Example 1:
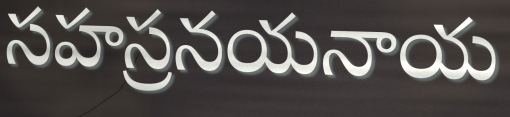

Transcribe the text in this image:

సహస్రనయనాయ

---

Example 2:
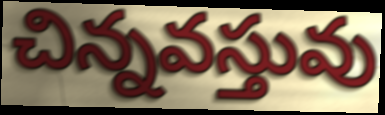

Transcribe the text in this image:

చిన్నవస్తువు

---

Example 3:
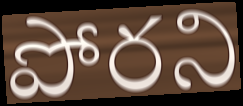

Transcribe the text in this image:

పోరని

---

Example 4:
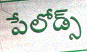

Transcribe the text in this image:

పేలోడ్స్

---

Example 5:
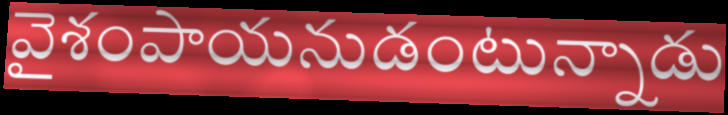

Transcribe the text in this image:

వైశంపాయనుడంటున్నాడు